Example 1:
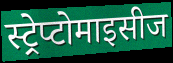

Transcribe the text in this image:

स्ट्रेप्टोमाइसीज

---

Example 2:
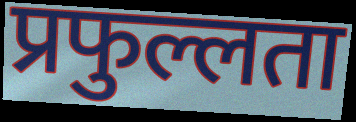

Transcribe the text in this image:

प्रफुल्लता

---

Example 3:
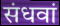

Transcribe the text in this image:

संधवां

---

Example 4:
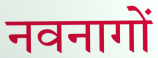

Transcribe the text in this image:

नवनागों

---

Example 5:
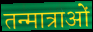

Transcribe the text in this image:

तन्मात्राओं